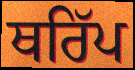
ਥਰਿੱਪ